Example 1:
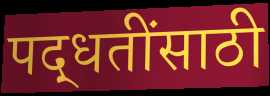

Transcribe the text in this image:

पद्धतींसाठी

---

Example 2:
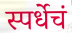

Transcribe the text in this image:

स्पर्धेचं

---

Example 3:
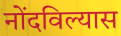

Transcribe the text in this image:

नोंदविल्यास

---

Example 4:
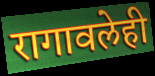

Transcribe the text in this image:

रागावलेही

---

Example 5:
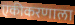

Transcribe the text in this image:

एकीकरणाला